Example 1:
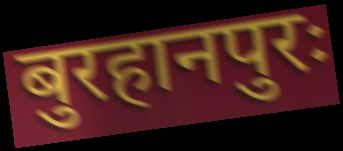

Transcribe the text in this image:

बुरहानपुरः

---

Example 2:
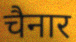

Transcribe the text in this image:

चैनार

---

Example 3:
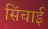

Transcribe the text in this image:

सिंचाई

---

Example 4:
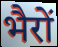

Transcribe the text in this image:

भैरों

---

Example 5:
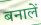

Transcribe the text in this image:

बनालें